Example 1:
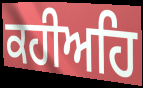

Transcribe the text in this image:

ਕਹੀਅਹਿ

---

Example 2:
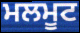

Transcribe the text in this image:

ਮਲਮੂਟ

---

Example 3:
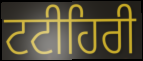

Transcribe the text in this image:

ਟਟੀਹਿਰੀ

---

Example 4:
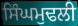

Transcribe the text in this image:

ਸਿੰਘਮੁਢਲੀ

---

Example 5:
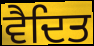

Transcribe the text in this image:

ਵੈਦਿਤ